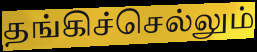
தங்கிச்செல்லும்